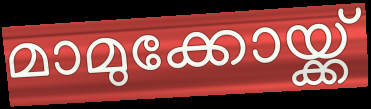
മാമുക്കോയ്ക്ക്